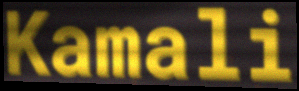
Kamali